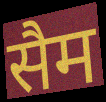
सैम